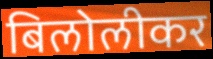
बिलोलीकर